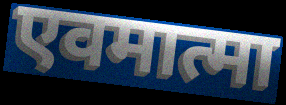
एवमात्मा